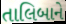
તાલિબાને